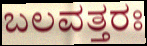
ಬಲವತ್ತರಃ